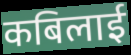
कबिलाई